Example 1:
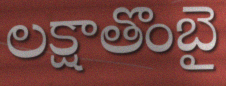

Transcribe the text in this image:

లక్షాతొంబై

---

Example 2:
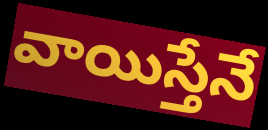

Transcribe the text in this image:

వాయిస్తేనే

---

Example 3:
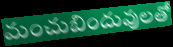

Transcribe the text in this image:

మంచుబిందువులతో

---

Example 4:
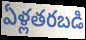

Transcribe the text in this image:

ఏళ్లతరబడి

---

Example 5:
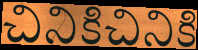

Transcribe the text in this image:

చినికిచినికి